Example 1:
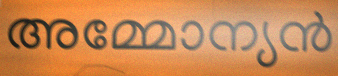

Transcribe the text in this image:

അമ്മോന്യൻ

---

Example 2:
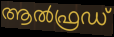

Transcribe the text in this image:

ആൽഫ്രഡ്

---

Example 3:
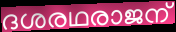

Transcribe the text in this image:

ദശരഥരാജന്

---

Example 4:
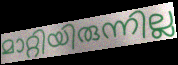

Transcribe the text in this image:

മാറ്റിയിരുന്നില്ല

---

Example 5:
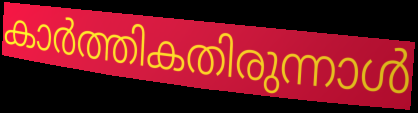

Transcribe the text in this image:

കാർത്തികതിരുന്നാൾ